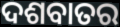
ଦଶବାତର